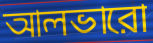
আলভারো